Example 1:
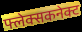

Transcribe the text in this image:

फ्लेक्सकनेक्ट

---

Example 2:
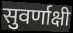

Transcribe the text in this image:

सुवर्णाक्षी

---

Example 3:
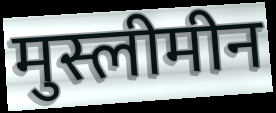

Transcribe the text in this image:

मुस्लीमीन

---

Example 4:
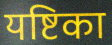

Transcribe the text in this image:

यष्टिका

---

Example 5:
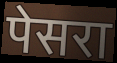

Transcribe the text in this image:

पेसरा